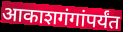
आकाशगंगांपर्यंत